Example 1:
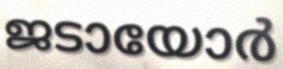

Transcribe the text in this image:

ജടായോർ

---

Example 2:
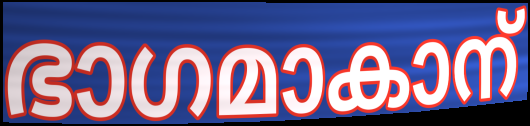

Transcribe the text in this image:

ഭാഗമാകാന്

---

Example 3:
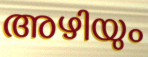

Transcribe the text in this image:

അഴിയും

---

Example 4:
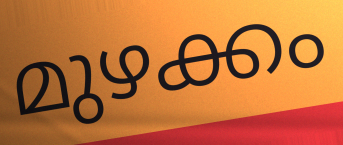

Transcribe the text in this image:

മുഴക്കം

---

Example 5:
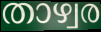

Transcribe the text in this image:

താഴ്വര